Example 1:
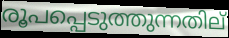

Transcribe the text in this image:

രൂപപ്പെടുത്തുന്നതില്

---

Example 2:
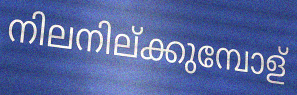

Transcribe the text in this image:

നിലനില്ക്കുമ്പോള്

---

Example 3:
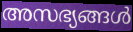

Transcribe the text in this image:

അസഭ്യങ്ങൾ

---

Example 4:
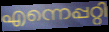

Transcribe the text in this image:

എന്നെപ്പറ്റി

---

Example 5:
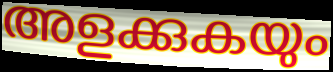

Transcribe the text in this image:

അളക്കുകയും